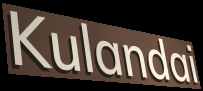
Kulandai